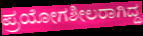
ಪ್ರಯೋಗಶೀಲರಾಗಿದ್ದ